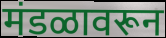
मंडळावरून